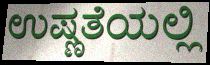
ಉಷ್ಣತೆಯಲ್ಲಿ